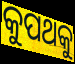
କୁପଥକୁ